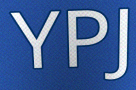
YPJ